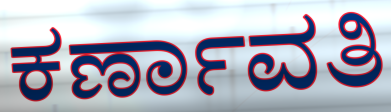
ಕರ್ಣಾವತಿ